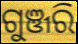
ଗୁଞ୍ଜରି